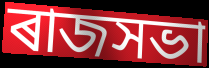
ৰাজসভা